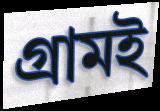
গ্রামই